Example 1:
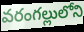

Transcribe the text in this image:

వరంగల్లులోని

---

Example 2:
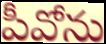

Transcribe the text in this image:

పీవోను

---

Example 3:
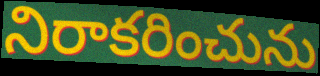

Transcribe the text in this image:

నిరాకరించును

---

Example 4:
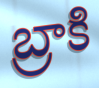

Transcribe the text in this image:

బ్రాకి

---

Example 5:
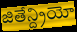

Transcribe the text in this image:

జితేన్ద్రియో